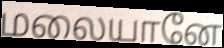
மலையானே